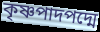
কৃষ্ণপাদপদ্মে